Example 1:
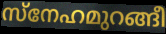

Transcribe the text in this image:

സ്നേഹമുറങ്ങീ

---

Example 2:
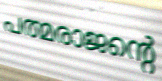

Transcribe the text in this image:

പത്മരാജന്റെ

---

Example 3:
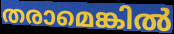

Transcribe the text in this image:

തരാമെങ്കിൽ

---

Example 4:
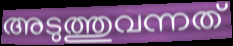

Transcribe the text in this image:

അടുത്തുവന്നത്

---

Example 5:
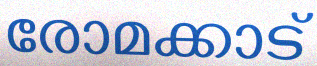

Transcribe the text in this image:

രോമക്കാട്